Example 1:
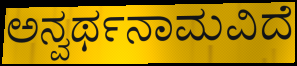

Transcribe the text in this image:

ಅನ್ವರ್ಥನಾಮವಿದೆ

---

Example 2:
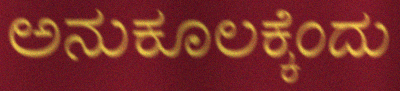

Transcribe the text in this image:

ಅನುಕೂಲಕ್ಕೆಂದು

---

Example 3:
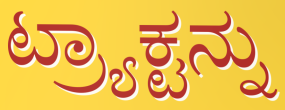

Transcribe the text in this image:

ಟ್ರ್ಯಾಕ್ಟನ್ನು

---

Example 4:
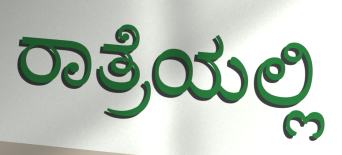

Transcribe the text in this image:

ರಾತ್ರೆಯಲ್ಲಿ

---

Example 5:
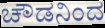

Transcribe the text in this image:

ಚೌಡನಿಂದ